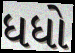
ધધો